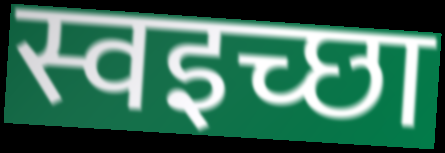
स्वइच्छा